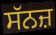
ਸੱਨਜ਼